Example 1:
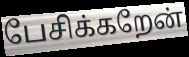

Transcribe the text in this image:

பேசிக்கறேன்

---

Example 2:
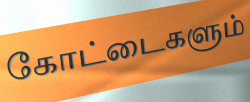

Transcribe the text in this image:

கோட்டைகளும்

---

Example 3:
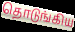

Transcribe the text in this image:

தொடுங்கிய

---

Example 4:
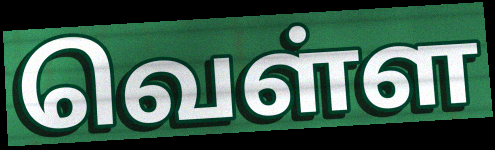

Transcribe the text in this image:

வெள்ள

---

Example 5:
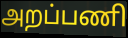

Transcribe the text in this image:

அறப்பணி